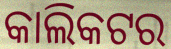
କାଲିକଟର